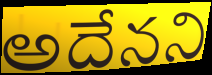
అదేనని